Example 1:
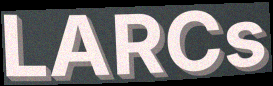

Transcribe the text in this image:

LARCs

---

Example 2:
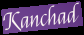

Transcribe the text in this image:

Kanchad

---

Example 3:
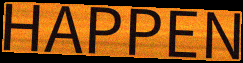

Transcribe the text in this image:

HAPPEN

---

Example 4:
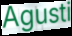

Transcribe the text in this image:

Agusti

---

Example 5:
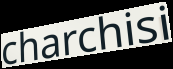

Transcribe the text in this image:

charchisi